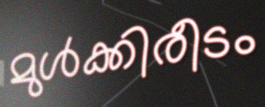
മുൾക്കിരീടം